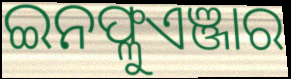
ଇନଫ୍ଳୁଏଞ୍ଜାର